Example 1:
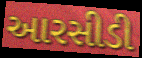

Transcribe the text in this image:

આરસીડી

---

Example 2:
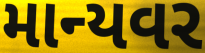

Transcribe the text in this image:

માન્યવર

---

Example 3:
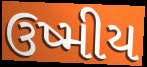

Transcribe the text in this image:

ઉષ્મીય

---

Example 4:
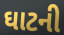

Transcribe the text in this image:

ઘાટની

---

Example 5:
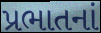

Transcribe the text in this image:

પ્રભાતનાં